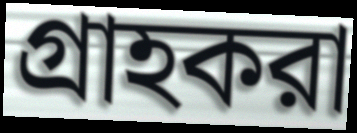
গ্রাহকরা